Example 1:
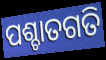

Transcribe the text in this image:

ପଶ୍ଚାତଗତି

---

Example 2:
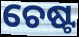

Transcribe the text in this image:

ଚେଷ୍ଟ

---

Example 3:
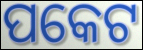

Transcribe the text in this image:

ପକେଟ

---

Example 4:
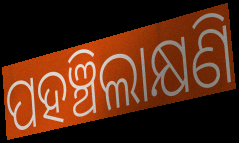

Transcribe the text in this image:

ପହଞ୍ଚିଲାକ୍ଷଣି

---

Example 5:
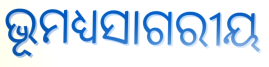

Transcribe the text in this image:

ଭୂମଧ୍ୟସାଗରୀୟ